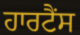
ਹਾਰਟੈਂਸ